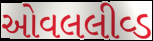
ઓવલલીવ્ડ